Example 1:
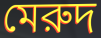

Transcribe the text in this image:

মেরুদ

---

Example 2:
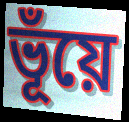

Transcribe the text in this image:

ভূঁয়ে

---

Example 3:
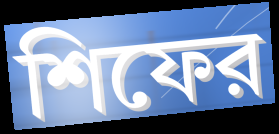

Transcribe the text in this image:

শিফের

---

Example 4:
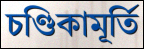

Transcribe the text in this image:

চণ্ডিকামূর্তি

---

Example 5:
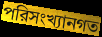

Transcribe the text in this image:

পরিসংখ্যানগত